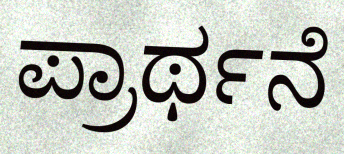
ಪ್ರಾರ್ಥನೆ